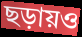
ছড়ায়ও